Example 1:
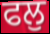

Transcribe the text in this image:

ਫਲੁ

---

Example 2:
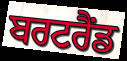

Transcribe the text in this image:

ਬਰਟਰੈਂਡ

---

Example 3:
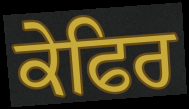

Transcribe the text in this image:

ਕੇਫਿਰ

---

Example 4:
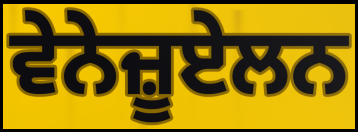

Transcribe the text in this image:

ਵੇਨੇਜ਼ੂਏਲਨ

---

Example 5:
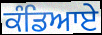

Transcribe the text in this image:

ਕੰਡਿਆਏ